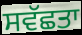
ਸਵੱਛਤਾ